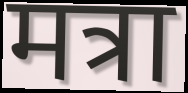
मत्रा